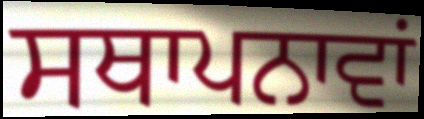
ਸਥਾਪਨਾਵਾਂ